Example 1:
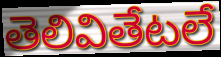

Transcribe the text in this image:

తెలివితేటలే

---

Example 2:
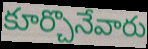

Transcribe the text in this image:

కూర్చొనేవారు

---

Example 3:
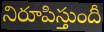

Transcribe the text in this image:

నిరూపిస్తుందీ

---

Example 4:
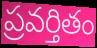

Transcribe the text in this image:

ప్రవర్తితం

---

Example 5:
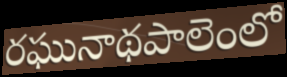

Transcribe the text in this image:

రఘునాథపాలెంలో